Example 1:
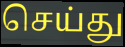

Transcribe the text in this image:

செய்து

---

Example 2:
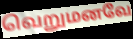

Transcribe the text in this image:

வெறுமனவே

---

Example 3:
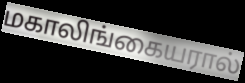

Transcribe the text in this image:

மகாலிங்கையரால்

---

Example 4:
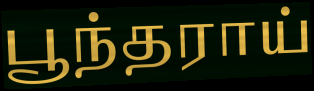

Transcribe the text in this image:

பூந்தராய்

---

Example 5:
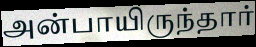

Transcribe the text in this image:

அன்பாயிருந்தார்